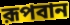
রূপবান